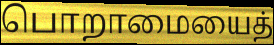
பொறாமையைத்